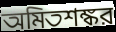
অমিতশঙ্কর